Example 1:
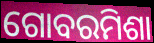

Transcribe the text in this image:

ଗୋବରମିଶା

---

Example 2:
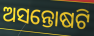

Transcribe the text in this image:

ଅସନ୍ତୋଷଟି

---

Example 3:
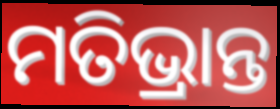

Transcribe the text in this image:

ମତିଭ୍ରାନ୍ତ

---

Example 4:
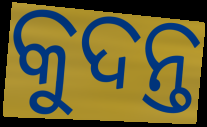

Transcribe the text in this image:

କୁଦନ୍ତ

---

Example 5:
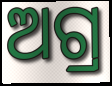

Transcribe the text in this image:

ଅଗ୍ର